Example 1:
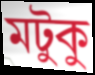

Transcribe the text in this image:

মটুকু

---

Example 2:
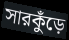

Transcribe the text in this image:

সারকুঁড়ে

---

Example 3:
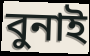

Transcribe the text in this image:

বুনাই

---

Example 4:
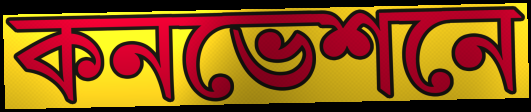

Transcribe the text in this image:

কনভেশনে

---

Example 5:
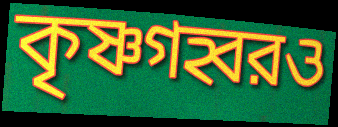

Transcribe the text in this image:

কৃষ্ণগহ্বরও